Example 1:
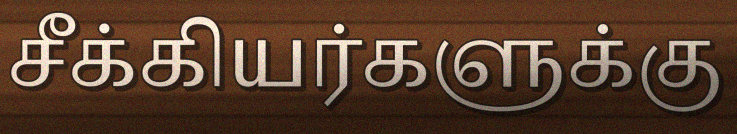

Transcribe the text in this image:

சீக்கியர்களுக்கு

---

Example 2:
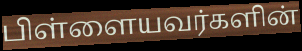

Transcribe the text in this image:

பிள்ளையவர்களின்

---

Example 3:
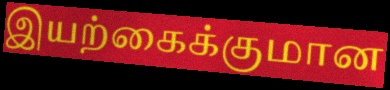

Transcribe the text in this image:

இயற்கைக்குமான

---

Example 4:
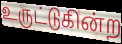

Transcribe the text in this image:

உருட்டுகின்ற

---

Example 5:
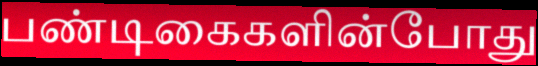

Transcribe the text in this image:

பண்டிகைகளின்போது